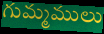
గుమ్మములు